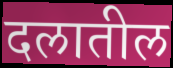
दलातील